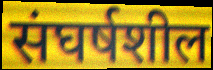
संघर्षशील